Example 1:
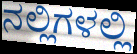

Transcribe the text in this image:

ನಲ್ಲಿಗಳಲ್ಲಿ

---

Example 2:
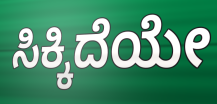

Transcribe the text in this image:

ಸಿಕ್ಕಿದೆಯೇ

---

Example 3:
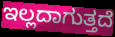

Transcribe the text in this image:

ಇಲ್ಲದಾಗುತ್ತದೆ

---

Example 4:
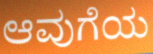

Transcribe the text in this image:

ಆವುಗೆಯ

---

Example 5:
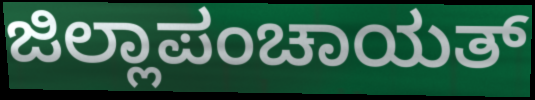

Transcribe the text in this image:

ಜಿಲ್ಲಾಪಂಚಾಯತ್